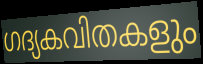
ഗദ്യകവിതകളും